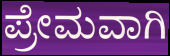
ಪ್ರೇಮವಾಗಿ